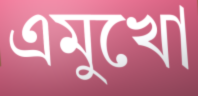
এমুখো